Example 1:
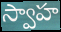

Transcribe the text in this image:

స్వాహ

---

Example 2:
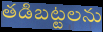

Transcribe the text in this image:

తడిబట్టలను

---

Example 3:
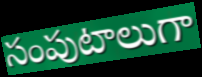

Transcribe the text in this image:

సంపుటాలుగా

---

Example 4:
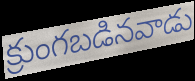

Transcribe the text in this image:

క్రుంగబడినవాడు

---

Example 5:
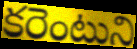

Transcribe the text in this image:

కరెంటుని